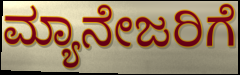
ಮ್ಯಾನೇಜರಿಗೆ